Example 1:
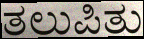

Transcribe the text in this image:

ತಲುಪಿತು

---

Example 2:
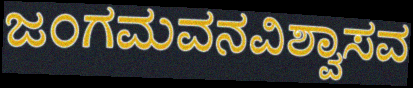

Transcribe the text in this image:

ಜಂಗಮವನವಿಶ್ವಾಸವ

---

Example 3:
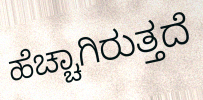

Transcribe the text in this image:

ಹೆಚ್ಚಾಗಿರುತ್ತದೆ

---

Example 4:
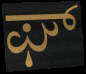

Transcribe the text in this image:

ಘ್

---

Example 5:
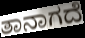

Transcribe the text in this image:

ತಾನಾಗದೆ